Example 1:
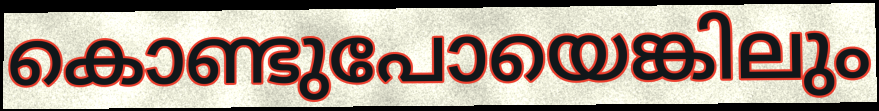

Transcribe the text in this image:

കൊണ്ടുപോയെങ്കിലും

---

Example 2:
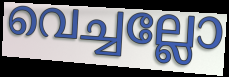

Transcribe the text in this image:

വെച്ചല്ലോ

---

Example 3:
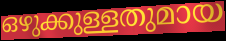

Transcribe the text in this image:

ഒഴുക്കുള്ളതുമായ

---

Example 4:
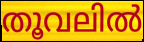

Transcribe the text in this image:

തൂവലിൽ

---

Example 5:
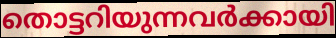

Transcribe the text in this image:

തൊട്ടറിയുന്നവർക്കായി